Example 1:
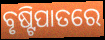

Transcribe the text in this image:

ବୃଷ୍ଟିପାତରେ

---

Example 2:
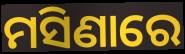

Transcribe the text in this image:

ମସିଣାରେ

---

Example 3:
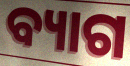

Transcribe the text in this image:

ବ୍ୟାଗ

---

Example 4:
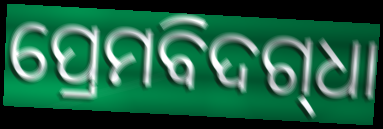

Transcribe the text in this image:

ପ୍ରେମବିଦଗ୍‍ଧା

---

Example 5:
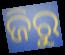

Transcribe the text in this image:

ଜିରୁ